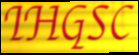
IHGSC